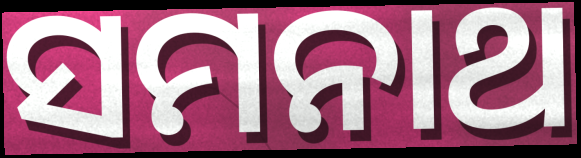
ସମନାଥ